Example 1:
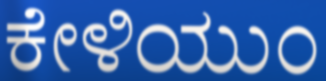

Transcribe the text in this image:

ಕೇಳಿಯುಂ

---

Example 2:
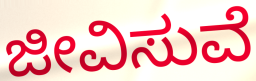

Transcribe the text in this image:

ಜೀವಿಸುವೆ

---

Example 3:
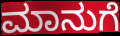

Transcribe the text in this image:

ಮಾನುಗೆ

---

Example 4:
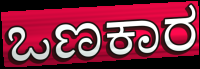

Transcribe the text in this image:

ಒಣಕಾರ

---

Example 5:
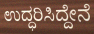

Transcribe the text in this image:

ಉದ್ಧರಿಸಿದ್ದೇನೆ